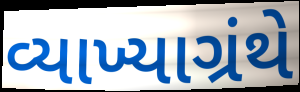
વ્યાખ્યાગ્રંથે